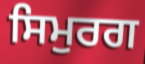
ਸਿਮੁਰਗ